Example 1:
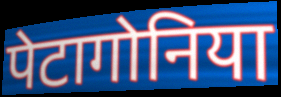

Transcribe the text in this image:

पेटागोनिया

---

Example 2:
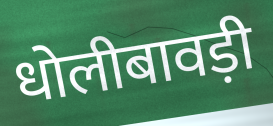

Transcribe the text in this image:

धोलीबावड़ी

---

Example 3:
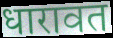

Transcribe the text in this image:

धारावत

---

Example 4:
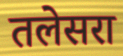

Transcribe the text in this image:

तलेसरा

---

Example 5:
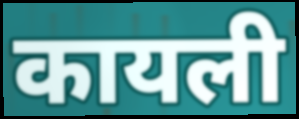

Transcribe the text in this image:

कायली